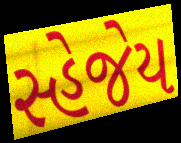
સ્હેજેય